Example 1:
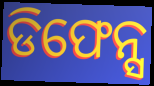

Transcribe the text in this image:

ଡିଫେନ୍ସ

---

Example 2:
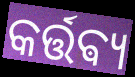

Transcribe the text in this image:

କର୍ତ୍ତଵ୍ୟ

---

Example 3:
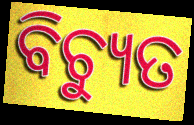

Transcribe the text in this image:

ବିଚ୍ୟୁତ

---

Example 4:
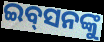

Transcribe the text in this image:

ଇବ୍‌ସନଙ୍କୁ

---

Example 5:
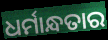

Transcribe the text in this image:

ଧର୍ମାନ୍ଧତାର